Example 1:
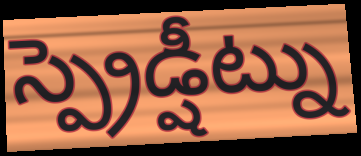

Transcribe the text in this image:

స్ప్రెడ్షీట్ను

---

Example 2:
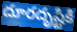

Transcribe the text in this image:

దూరదృష్టికి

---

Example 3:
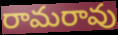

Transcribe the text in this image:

రామరావు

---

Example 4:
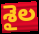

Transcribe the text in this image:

శైల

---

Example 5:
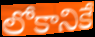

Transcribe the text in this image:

లోకానికే